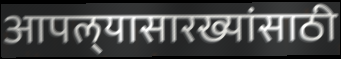
आपल्यासारख्यांसाठी